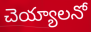
చెయ్యాలనో